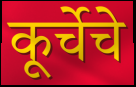
कूर्चेचे